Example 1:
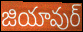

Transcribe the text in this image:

జియావుర్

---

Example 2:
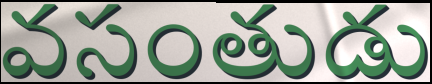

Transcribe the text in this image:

వసంతుడు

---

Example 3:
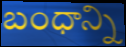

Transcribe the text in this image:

బంధాన్ని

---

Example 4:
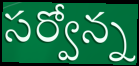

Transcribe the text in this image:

సర్వోన్న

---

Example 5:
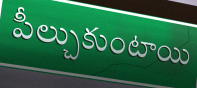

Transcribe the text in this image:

పీల్చుకుంటాయి